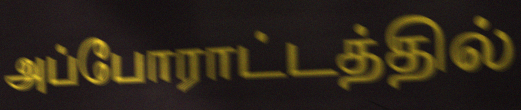
அப்போராட்டத்தில்